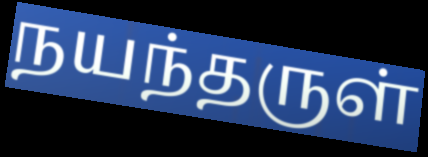
நயந்தருள்